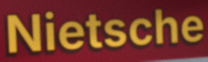
Nietsche